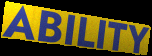
ABILITY